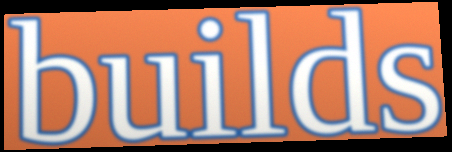
builds